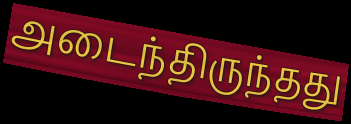
அடைந்திருந்தது